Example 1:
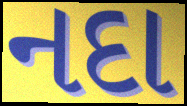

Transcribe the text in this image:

નદા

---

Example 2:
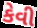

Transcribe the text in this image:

કેવી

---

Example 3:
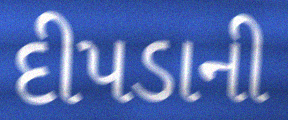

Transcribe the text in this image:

દીપડાની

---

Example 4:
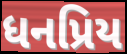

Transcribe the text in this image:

ધનપ્રિય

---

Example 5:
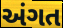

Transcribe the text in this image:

અંગત